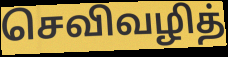
செவிவழித்